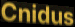
Cnidus